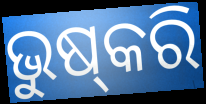
ଭୁଷ୍‌କରି